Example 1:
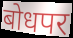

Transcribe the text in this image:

बोधपर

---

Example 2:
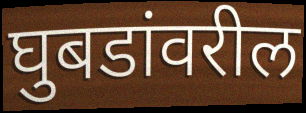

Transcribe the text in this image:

घुबडांवरील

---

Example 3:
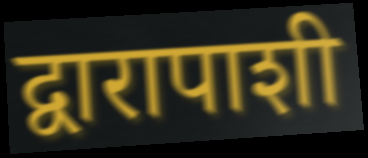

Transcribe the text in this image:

द्वारापाशी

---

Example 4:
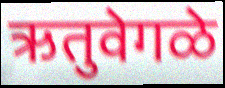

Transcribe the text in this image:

ऋतुवेगळे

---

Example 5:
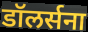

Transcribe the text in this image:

डॉलर्सना